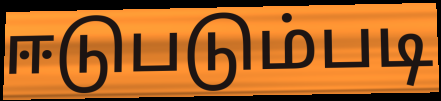
ஈடுபடும்படி